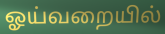
ஓய்வறையில்